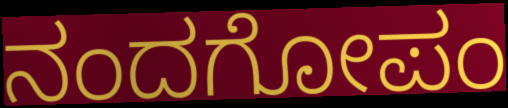
ನಂದಗೋಪಂ